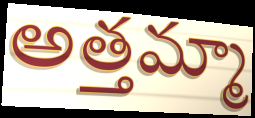
అత్తమ్మా